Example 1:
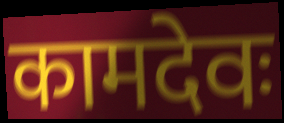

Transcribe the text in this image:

कामदेवः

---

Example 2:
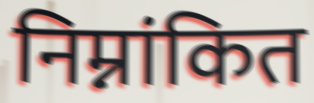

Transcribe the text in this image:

निम्नांकित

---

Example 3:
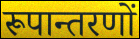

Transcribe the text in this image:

रूपान्तरणों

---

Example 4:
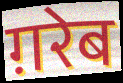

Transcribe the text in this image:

ग़रेब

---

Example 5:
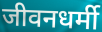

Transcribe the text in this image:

जीवनधर्मी